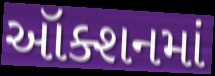
ઑક્શનમાં